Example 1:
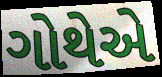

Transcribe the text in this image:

ગોથેએ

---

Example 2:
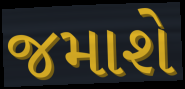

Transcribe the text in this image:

જમાશે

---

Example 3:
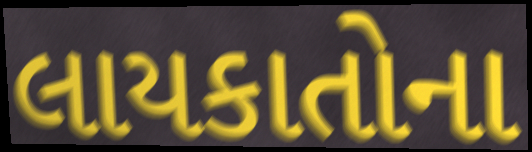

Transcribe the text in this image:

લાયકાતોના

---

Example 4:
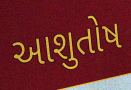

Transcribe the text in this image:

આશુતોષ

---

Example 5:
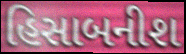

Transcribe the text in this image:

હિસાબનીશ